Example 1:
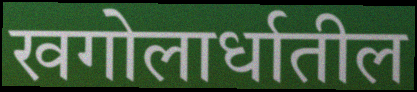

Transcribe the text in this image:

खगोलार्धातील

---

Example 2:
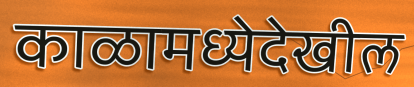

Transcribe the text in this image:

काळामध्येदेखील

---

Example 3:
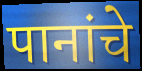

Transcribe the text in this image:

पानांचे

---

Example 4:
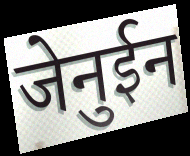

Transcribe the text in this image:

जेनुईन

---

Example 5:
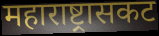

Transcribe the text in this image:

महाराष्ट्रासकट